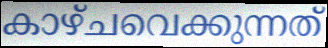
കാഴ്ചവെക്കുന്നത്